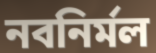
নবনির্মল